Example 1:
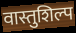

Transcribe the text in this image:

वास्तुशिल्प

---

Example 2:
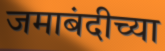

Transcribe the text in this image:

जमाबंदीच्या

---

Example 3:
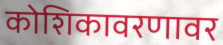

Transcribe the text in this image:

कोशिकावरणावर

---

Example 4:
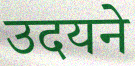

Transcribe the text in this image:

उदयने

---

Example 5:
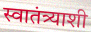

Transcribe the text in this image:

स्वातंत्र्याशी